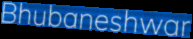
Bhubaneshwar